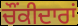
ਚੌਂਕੀਦਾਰਾਂ